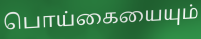
பொய்கையையும்